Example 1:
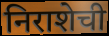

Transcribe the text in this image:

निराशेची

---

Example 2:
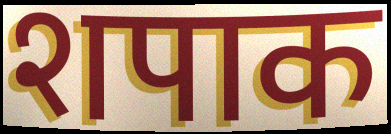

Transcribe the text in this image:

शपाक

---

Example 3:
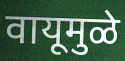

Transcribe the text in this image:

वायूमुळे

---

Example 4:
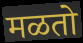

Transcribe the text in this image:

मळतो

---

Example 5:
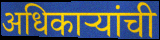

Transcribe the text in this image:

अधिकार्‍यांची